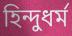
হিন্দুধৰ্ম